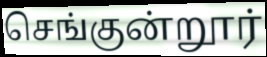
செங்குன்றூர்